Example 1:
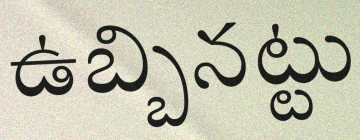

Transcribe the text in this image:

ఉబ్బినట్టు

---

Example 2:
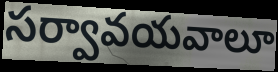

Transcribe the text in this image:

సర్వావయవాలూ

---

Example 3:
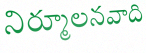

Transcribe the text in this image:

నిర్మూలనవాది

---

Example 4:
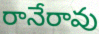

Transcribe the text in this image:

రానేరావు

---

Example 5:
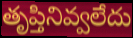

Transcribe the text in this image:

తృప్తినివ్వలేదు